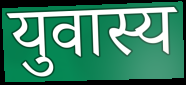
युवास्य